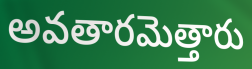
అవతారమెత్తారు